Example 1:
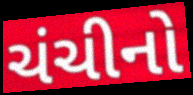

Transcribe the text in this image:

ચંચીનો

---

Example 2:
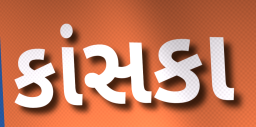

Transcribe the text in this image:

કાંસકા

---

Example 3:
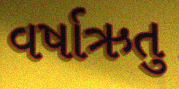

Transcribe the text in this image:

વર્ષાઋતુ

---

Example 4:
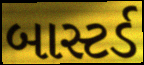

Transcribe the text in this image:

બાસ્ટર્ડ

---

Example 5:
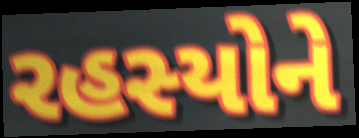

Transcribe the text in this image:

રહસ્યોને